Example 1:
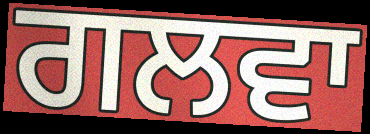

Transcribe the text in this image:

ਗਲਵਾ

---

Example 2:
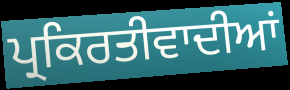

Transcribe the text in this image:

ਪ੍ਰਕਿਰਤੀਵਾਦੀਆਂ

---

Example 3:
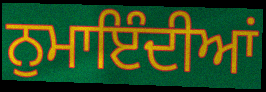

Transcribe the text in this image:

ਨੁਮਾਇੰਦੀਆਂ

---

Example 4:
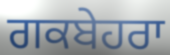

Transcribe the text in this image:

ਗਕਬੇਹਰਾ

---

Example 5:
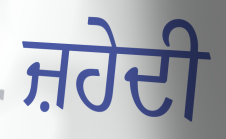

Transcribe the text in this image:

ਜ਼ਹੇਦੀ